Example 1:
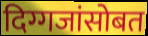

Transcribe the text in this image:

दिग्गजांसोबत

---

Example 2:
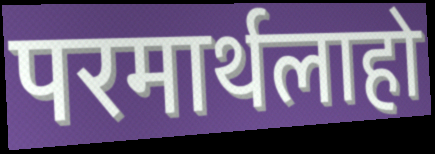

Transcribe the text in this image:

परमार्थलाहो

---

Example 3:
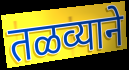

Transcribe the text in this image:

तळव्याने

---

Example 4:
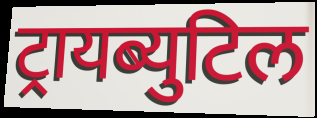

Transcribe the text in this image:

ट्रायब्युटिल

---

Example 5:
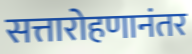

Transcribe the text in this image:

सत्तारोहणानंतर